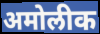
अमोलीक